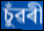
চুঁৱৰী